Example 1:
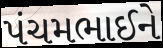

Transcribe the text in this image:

પંચમભાઈને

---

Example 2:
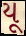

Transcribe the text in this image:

યૂ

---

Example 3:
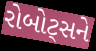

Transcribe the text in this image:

રોબોટ્સને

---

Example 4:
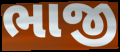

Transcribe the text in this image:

ભાજી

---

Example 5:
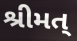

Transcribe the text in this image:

શ્રીમત્